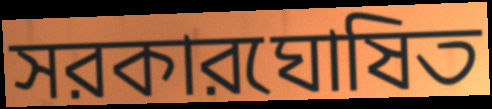
সরকারঘোষিত